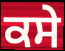
ਕਸੇ